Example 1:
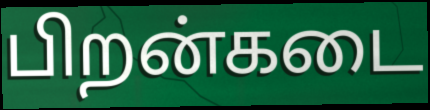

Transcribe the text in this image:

பிறன்கடை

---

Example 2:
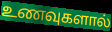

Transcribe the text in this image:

உணவுகளால்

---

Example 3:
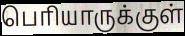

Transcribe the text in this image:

பெரியாருக்குள்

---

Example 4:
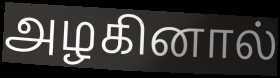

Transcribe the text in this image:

அழகினால்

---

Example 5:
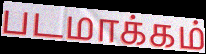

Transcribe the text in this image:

படமாக்கம்